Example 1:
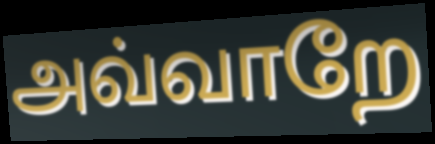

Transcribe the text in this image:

அவ்வாறே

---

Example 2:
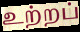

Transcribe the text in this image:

உற்றப்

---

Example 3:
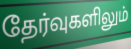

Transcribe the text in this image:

தேர்வுகளிலும்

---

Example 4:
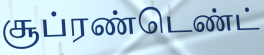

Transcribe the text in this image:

சூப்ரண்டெண்ட்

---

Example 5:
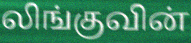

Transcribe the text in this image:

லிங்குவின்